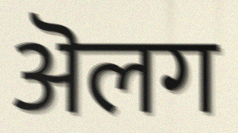
ऄलग